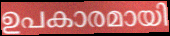
ഉപകാരമായി